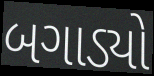
બગાડ્યો